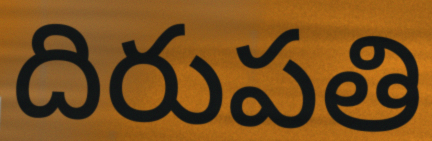
దిరుపతి